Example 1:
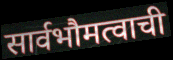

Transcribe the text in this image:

सार्वभौमत्वाची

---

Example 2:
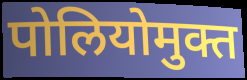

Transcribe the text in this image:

पोलियोमुक्त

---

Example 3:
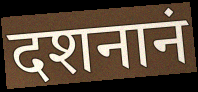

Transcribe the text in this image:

दशनानं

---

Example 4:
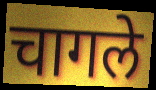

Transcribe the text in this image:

चागले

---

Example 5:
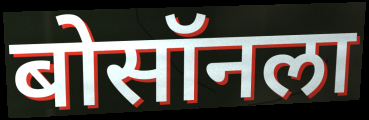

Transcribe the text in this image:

बोसॉनला